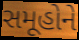
સમૂહોને